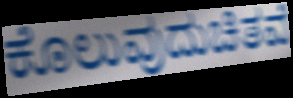
ಕೊಲುವುದುಚಿತವೆ